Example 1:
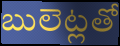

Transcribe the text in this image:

బులెట్లతో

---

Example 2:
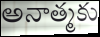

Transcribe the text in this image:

అనాత్మకు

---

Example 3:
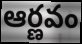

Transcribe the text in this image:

ఆర్ణవం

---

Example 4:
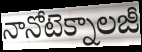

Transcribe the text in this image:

నానోటెక్నాలజీ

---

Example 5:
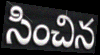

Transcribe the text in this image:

సించిన